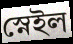
স্নেইল